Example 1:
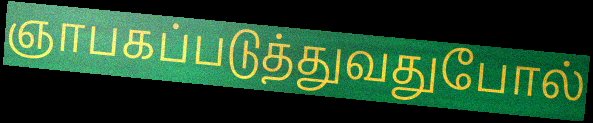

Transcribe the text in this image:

ஞாபகப்படுத்துவதுபோல்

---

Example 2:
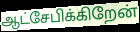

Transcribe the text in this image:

ஆட்சேபிக்கிறேன்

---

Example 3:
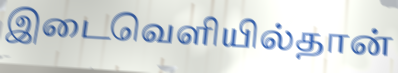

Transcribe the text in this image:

இடைவெளியில்தான்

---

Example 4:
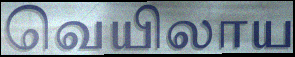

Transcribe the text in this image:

வெயிலாய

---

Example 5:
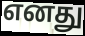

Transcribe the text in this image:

எனது